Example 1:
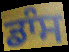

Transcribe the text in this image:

ਡਾੰਸ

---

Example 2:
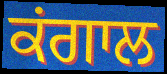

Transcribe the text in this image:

ਕਂਗਾਲ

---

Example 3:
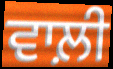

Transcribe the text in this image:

ਵਾਲ਼ੀ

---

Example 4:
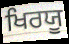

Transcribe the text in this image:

ਖਿਰਯੂ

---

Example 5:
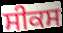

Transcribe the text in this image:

ਸੀਕਸ